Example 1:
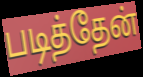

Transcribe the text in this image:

படித்தேன்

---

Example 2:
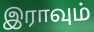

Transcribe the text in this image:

இராவும்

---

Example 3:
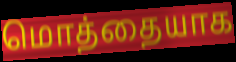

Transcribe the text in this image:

மொத்தையாக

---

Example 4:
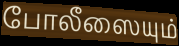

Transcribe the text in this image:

போலீஸையும்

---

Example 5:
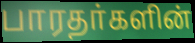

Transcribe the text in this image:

பாரதர்களின்